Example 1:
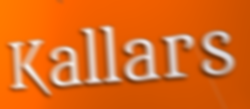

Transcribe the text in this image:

Kallars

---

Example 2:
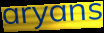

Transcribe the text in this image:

aryans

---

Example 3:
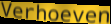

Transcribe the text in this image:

Verhoeven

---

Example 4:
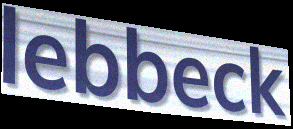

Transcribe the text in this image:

lebbeck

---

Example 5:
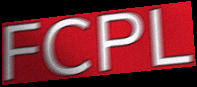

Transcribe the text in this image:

FCPL